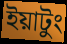
ইয়াটুং